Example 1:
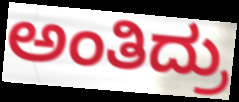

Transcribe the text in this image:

ಅಂತಿದ್ರು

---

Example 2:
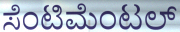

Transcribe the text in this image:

ಸೆಂಟಿಮೆಂಟಲ್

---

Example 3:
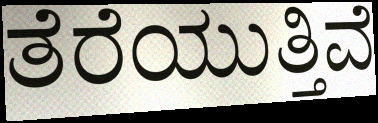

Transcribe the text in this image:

ತೆರೆಯುತ್ತಿವೆ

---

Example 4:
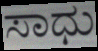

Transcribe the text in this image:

ಸಾಧು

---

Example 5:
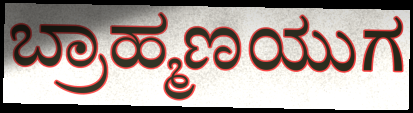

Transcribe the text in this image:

ಬ್ರಾಹ್ಮಣಯುಗ